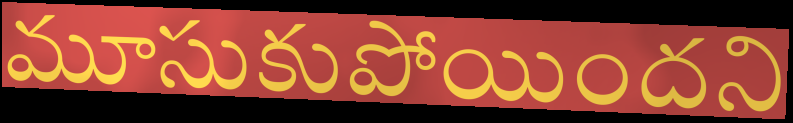
మూసుకుపోయిందని